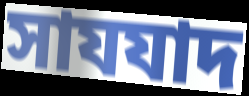
সাযযাদ